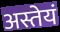
अस्तेयं